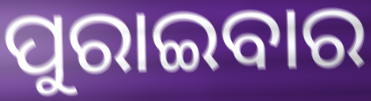
ପୁରାଇବାର